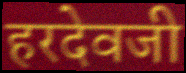
हरदेवजी